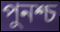
পুনশ্চ